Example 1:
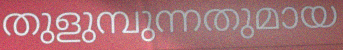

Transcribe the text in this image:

തുളുമ്പുന്നതുമായ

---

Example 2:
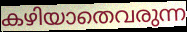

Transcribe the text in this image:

കഴിയാതെവരുന്ന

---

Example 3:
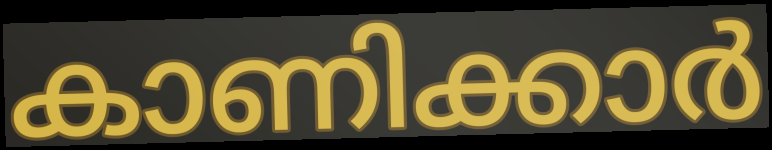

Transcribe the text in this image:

കാണിക്കാർ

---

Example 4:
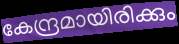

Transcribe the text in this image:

കേന്ദ്രമായിരിക്കും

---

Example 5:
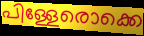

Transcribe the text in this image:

പിള്ളേരൊക്കെ